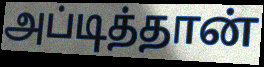
அப்டித்தான்